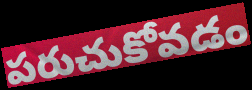
పరుచుకోవడం